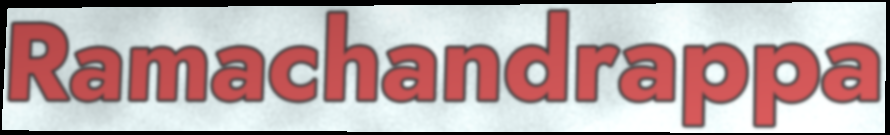
Ramachandrappa